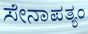
ಸೇನಾಪತ್ಯಂ